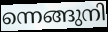
ന്നെങ്ങുനി